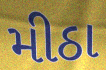
મીઠા